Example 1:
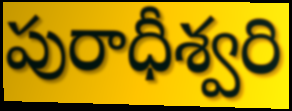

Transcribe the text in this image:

పురాధీశ్వరి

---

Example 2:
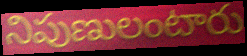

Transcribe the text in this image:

నిపుణులంటారు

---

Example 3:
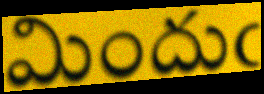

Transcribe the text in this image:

మిందుఁ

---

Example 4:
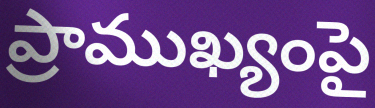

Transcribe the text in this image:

ప్రాముఖ్యంపై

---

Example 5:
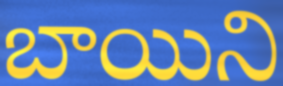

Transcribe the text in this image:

బాయిని